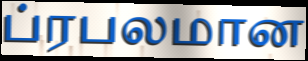
ப்ரபலமான